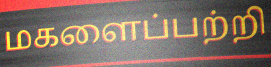
மகளைப்பற்றி